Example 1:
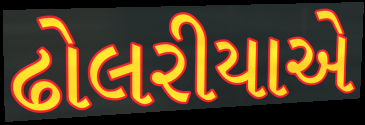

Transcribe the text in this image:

ઢોલરીયાએ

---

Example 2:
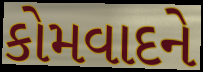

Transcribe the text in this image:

કોમવાદને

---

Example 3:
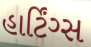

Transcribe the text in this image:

હાર્ટિંગ્સ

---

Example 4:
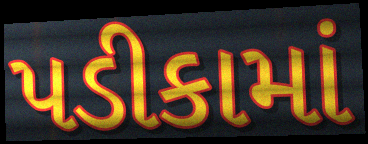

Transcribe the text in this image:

પડીકામાં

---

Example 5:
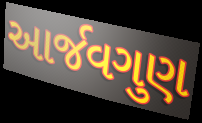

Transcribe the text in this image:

આર્જવગુણ